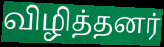
விழித்தனர்